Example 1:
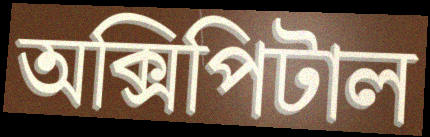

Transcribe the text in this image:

অক্সিপিটাল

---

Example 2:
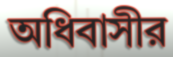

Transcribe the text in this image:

অধিবাসীর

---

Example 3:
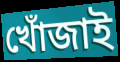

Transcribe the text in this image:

খোঁজাই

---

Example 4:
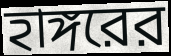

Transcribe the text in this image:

হাঙ্গরের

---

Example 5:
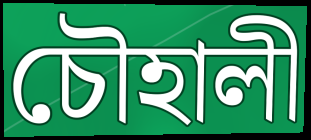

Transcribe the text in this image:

চৌহালী